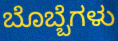
ಬೊಬ್ಬೆಗಳು